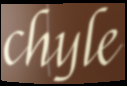
chyle